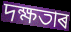
দক্ষতাৰ